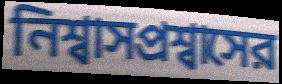
নিশ্বাসপ্রশ্বাসের